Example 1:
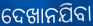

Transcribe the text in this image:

ଦେଖାନଯିବା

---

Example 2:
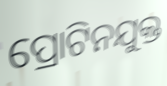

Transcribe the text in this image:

ପ୍ରୋଟିନଯୁକ୍ତ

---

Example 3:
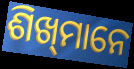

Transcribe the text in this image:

ଶିଖ୍‌ମାନେ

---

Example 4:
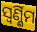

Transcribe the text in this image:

ସ୍ୱର୍ଣ୍ଣିମ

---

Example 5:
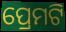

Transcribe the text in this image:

ପ୍ରେମଟି